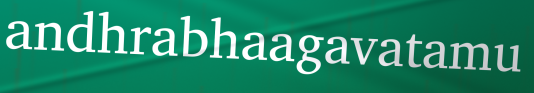
andhrabhaagavatamu